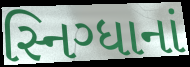
સ્નિગ્ધાનાં